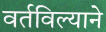
वर्तविल्याने